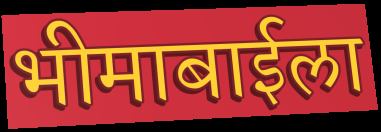
भीमाबाईला